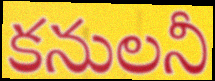
కనులనీ